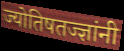
ज्योतिषतज्ज्ञांनी